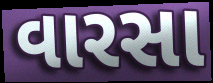
વારસા